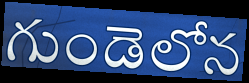
గుండెలోన